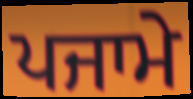
ਪਜਾਮੇ